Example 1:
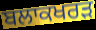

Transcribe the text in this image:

ਬਲਾਕਖਰੜ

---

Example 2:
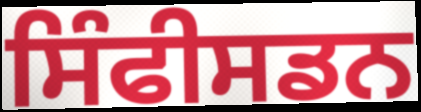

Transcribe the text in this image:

ਸਿੰਫੀਸਡਨ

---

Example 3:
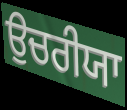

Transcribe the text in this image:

ਉਚਰੀਯਾ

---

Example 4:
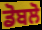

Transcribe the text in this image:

ਡੋਬਲੋ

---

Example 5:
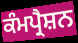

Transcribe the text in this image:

ਕੰਮਪ੍ਰੈਸ਼ਨ